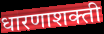
धारणाशक्ती